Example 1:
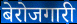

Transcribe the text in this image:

बेरोजगारी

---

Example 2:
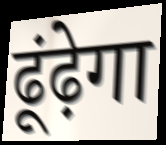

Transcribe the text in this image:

ढूंढ़ेगा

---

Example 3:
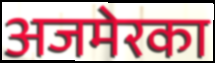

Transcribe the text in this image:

अजमेरका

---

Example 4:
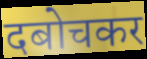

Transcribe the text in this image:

दबोचकर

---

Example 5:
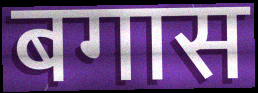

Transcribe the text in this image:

बगास